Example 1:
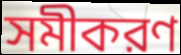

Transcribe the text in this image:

সমীকরণ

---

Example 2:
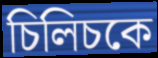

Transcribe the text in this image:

চিলিচকে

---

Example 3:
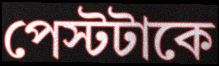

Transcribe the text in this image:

পেস্টটাকে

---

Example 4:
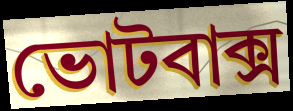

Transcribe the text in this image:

ভোটবাক্স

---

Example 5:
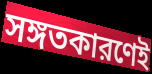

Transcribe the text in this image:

সঙ্গতকারণেই